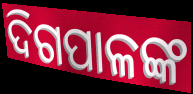
ଦିଗପାଳଙ୍କ